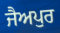
ਜੈਅਪੁਰ